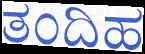
ತಂದಿಹ